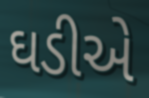
ઘડીએ